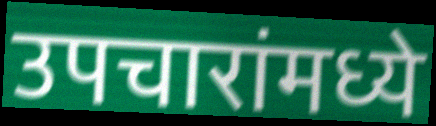
उपचारांमध्ये